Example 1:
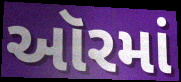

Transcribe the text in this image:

ઑરમાં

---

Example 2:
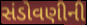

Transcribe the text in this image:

સંડોવણીની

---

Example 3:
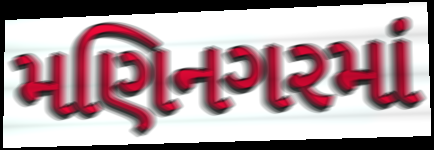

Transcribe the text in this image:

મણિનગરમાં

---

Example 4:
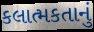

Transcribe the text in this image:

કલાત્મકતાનું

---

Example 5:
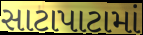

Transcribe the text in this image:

સાટાપાટામાં